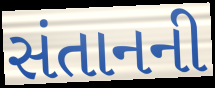
સંતાનની